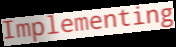
Implementing